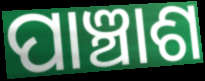
ପାଞ୍ଚାଶ